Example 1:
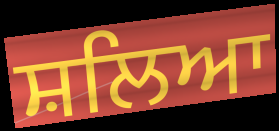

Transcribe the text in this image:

ਸ਼ਲਿਆ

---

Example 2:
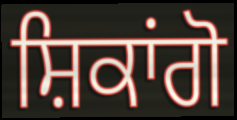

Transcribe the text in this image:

ਸ਼ਿਕਾਂਗੋ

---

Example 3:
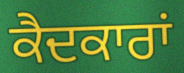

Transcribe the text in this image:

ਕੈਦਕਾਰਾਂ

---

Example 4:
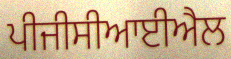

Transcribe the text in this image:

ਪੀਜੀਸੀਆਈਐਲ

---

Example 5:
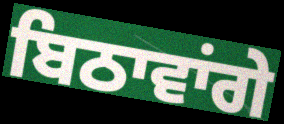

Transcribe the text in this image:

ਬਿਠਾਵਾਂਗੇ